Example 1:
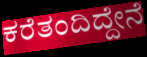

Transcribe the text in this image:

ಕರೆತಂದಿದ್ದೇನೆ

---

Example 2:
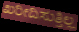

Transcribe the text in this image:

ಖರೀದಿಸುತ್ತಿಲ್ಲ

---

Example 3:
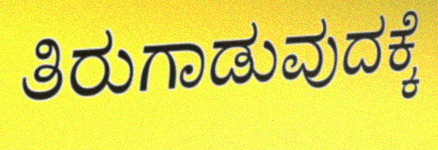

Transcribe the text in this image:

ತಿರುಗಾಡುವುದಕ್ಕೆ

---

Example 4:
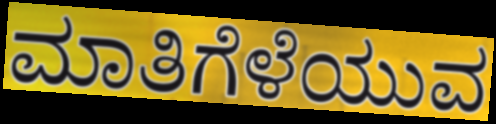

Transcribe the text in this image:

ಮಾತಿಗೆಳೆಯುವ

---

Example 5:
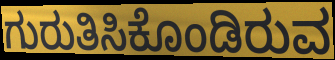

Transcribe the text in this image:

ಗುರುತಿಸಿಕೊಂಡಿರುವ